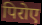
पिरोए